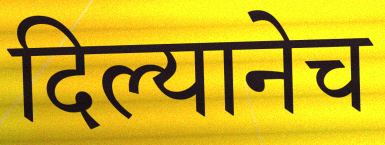
दिल्यानेच